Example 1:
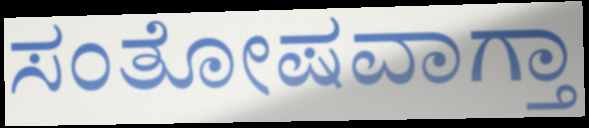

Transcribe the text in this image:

ಸಂತೋಷವಾಗ್ತಾ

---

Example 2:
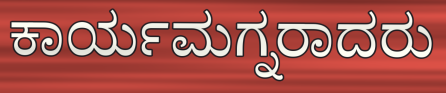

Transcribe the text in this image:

ಕಾರ್ಯಮಗ್ನರಾದರು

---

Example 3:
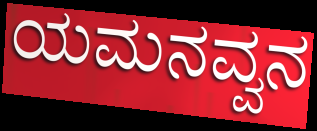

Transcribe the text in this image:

ಯಮನವ್ವನ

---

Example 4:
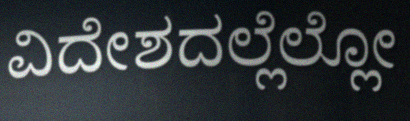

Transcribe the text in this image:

ವಿದೇಶದಲ್ಲೆಲ್ಲೋ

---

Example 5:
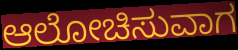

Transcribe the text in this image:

ಆಲೋಚಿಸುವಾಗ